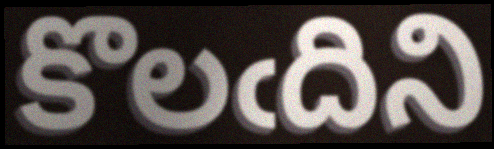
కొలఁదిని